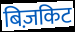
बिज़किट